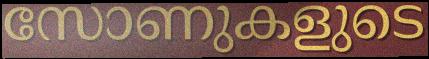
സോണുകളുടെ